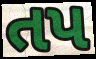
તપ